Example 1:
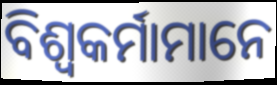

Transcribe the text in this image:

ବିଶ୍ଵକର୍ମାମାନେ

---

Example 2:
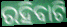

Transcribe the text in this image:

ରହିବାଟି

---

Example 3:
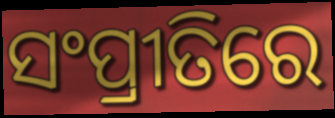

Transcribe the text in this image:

ସଂପ୍ରୀତିରେ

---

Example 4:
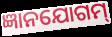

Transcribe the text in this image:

ଜ୍ଞାନଯୋଗମ୍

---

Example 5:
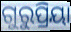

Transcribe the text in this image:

ଗୁରୁପ୍ରିୟା